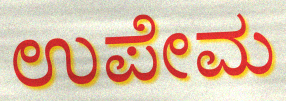
ಉಪೇಮ